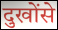
दुखोंसे